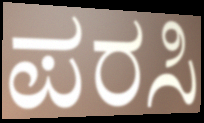
ಪರಸಿ